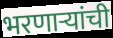
भरणाऱ्यांची